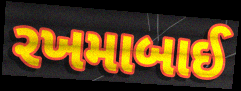
રખમાબાઈ